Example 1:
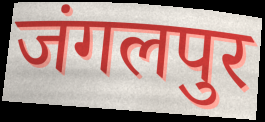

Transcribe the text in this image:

जंगलपुर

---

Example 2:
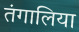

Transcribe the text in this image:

तंगालिया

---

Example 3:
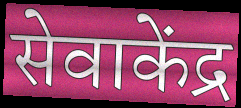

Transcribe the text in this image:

सेवाकेंद्र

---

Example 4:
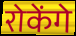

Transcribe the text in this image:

रोकेंगे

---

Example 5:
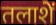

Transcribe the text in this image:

तलाशें